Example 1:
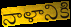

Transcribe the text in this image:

నాళానికి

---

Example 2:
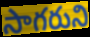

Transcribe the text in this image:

సాగరుని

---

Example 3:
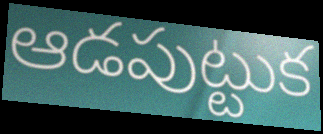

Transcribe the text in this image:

ఆడపుట్టుక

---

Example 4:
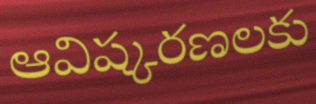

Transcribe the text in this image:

ఆవిష్కరణలకు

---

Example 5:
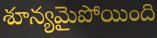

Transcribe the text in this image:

శూన్యమైపోయింది